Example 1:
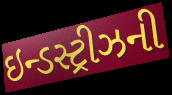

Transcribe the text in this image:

ઇન્ડસ્ટ્રીઝની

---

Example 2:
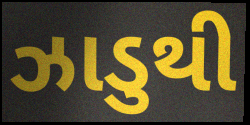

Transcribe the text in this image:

ઝાડુથી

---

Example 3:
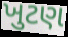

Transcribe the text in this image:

ખુટણ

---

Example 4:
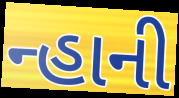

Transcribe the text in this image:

ન્હાની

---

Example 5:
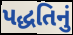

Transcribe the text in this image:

પદ્ધતિનું